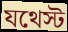
যথেস্ট